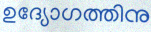
ഉദ്യോഗത്തിനു